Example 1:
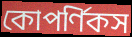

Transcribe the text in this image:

কোপর্ণিকস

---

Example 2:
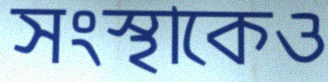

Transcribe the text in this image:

সংস্থাকেও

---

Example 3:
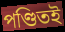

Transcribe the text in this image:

পণ্ডিতই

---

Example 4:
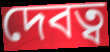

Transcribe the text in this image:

দেবত্ব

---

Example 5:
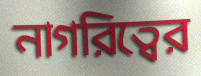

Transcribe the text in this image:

নাগরিত্বের